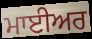
ਮਾਈਅਰ